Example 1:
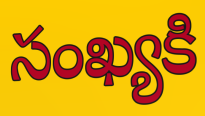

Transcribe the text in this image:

సంఖ్యకి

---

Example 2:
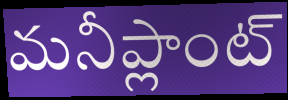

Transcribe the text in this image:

మనీప్లాంట్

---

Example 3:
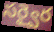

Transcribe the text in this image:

సర్వైర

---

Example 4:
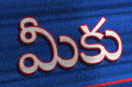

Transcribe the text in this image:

మీకు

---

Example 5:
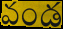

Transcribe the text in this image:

వండ